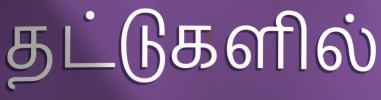
தட்டுகளில்